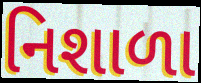
નિશાળા